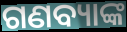
ଗଣବ୍ୟାଙ୍କ